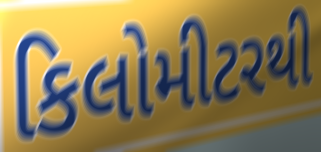
કિલોમીટરથી